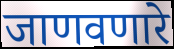
जाणवणारे